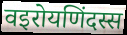
वइरोयणिंदस्स